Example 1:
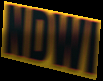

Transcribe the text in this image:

NDWI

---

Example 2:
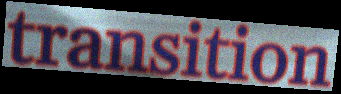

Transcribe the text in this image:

transition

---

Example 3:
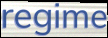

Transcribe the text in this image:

regime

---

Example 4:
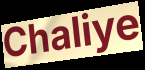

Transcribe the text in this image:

Chaliye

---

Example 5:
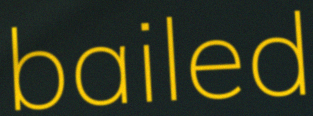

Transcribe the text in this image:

bailed